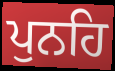
ਪੁਨਹਿ